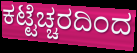
ಕಟ್ಟೆಚ್ಚರದಿಂದ